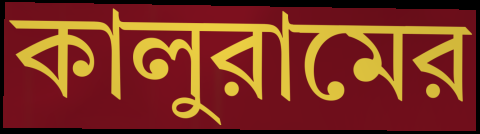
কালুরামের